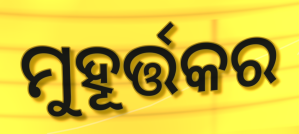
ମୁହୂର୍ତ୍ତକର